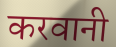
करवानी